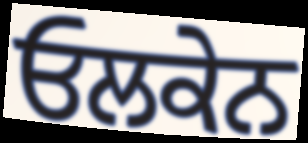
ਓਲਕੇਨ